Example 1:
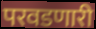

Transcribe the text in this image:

परवडणारी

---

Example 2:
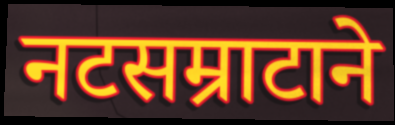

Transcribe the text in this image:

नटसम्राटाने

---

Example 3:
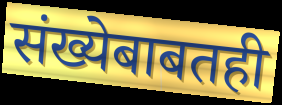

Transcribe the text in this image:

संख्येबाबतही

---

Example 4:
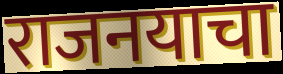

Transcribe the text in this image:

राजनयाचा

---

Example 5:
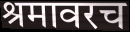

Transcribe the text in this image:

श्रमावरच